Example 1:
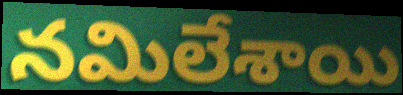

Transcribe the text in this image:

నమిలేశాయి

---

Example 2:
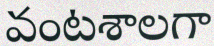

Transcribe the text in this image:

వంటశాలగా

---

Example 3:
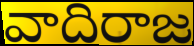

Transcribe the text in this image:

వాదిరాజ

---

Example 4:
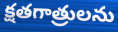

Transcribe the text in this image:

క్షతగాత్రులను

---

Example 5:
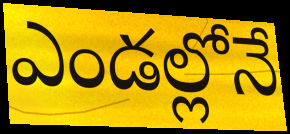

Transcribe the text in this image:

ఎండల్లోనే